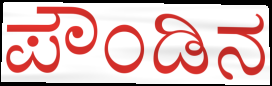
ಪೌಂಡಿನ